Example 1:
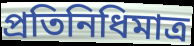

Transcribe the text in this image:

প্রতিনিধিমাত্র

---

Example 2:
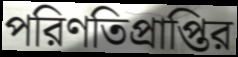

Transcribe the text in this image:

পরিণতিপ্রাপ্তির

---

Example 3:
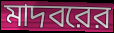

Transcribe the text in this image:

মাদবরের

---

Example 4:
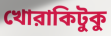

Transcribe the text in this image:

খোরাকিটুকু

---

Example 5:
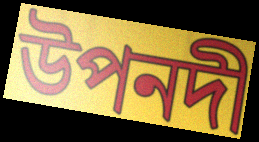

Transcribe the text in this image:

উপনদী